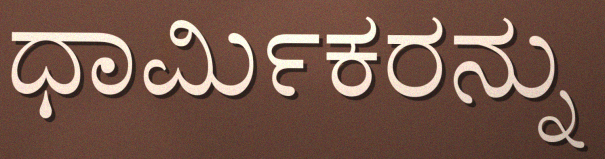
ಧಾರ್ಮಿಕರನ್ನು